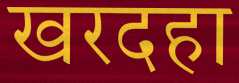
खरदहा